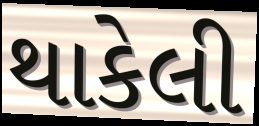
થાકેલી